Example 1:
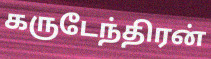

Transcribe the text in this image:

கருடேந்திரன்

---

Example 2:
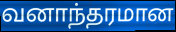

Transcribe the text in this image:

வனாந்தரமான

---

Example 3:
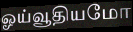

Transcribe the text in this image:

ஓய்வூதியமோ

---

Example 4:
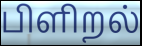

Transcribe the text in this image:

பிளிறல்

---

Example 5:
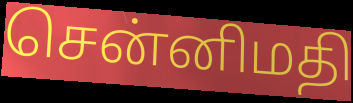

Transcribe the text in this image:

சென்னிமதி